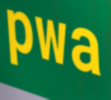
pwa